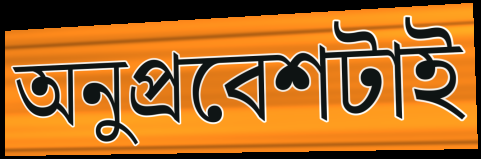
অনুপ্রবেশটাই